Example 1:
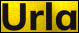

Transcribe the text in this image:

Urla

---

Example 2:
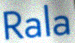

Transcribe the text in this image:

Rala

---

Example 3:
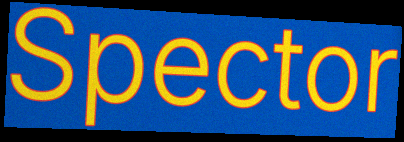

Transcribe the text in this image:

Spector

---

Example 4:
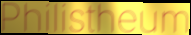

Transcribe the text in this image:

Philistheum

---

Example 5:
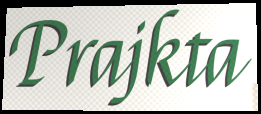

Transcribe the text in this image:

Prajkta